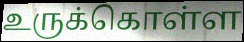
உருக்கொள்ள